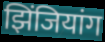
झिंजियांग